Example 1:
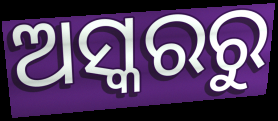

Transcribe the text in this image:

ଅସ୍କରରୁ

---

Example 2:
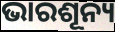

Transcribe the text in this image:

ଭାରଶୂନ୍ୟ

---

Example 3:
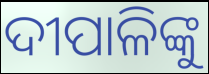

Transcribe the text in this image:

ଦୀପାଳିଙ୍କୁ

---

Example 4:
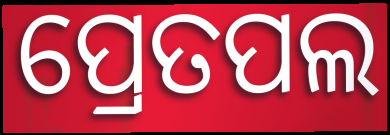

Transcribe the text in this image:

ପ୍ରେତପଲ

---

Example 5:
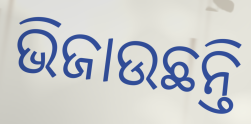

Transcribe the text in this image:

ଭିଜାଉଛନ୍ତି